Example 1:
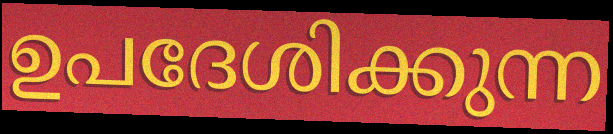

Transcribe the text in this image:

ഉപദേശിക്കുന്ന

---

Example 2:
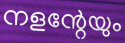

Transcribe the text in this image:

നളന്റേയും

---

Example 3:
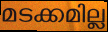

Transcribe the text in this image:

മടക്കമില്ല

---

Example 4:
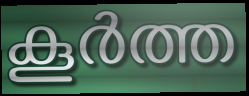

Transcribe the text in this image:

കൂർത്ത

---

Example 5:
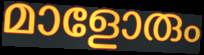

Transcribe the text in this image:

മാളോരും